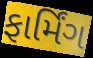
ફાર્મિંગ